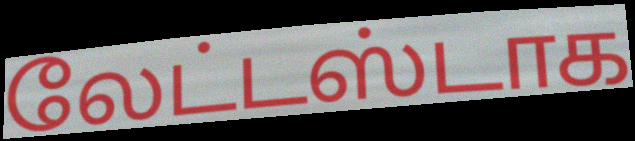
லேட்டஸ்டாக